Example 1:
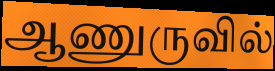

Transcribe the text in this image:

ஆணுருவில்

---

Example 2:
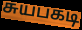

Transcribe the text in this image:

சுயபகடி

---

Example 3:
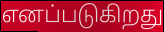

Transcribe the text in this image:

எனப்படுகிறது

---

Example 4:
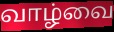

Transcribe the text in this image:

வாழ்வை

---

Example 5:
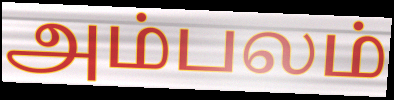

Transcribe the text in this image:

அம்பலம்